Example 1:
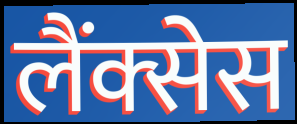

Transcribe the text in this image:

लैंक्‍सेस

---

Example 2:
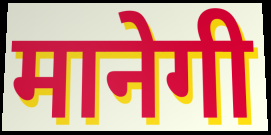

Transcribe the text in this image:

मानेगी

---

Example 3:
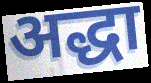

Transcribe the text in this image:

अद्धा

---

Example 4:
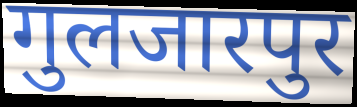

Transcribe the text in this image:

गुलजारपुर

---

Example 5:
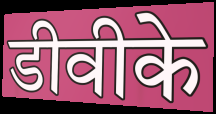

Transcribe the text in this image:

डीवीके